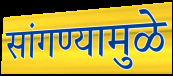
सांगण्यामुळे